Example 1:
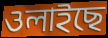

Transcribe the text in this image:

ওলাইছে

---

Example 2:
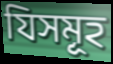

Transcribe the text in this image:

যিসমূহ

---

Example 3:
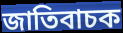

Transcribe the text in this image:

জাতিবাচক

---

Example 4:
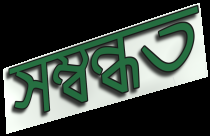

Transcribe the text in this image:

সম্বন্ধত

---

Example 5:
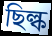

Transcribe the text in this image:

ছিল্ক